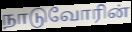
நாடுவோரின்